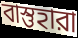
বাস্তুহারা